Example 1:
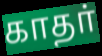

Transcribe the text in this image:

காதர்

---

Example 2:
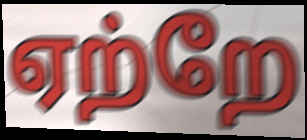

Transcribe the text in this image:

ஏற்றே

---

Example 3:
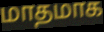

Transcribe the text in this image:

மாதமாக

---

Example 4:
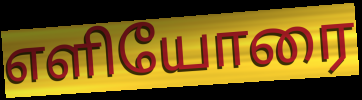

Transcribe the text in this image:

எளியோரை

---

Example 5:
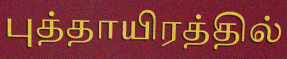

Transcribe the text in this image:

புத்தாயிரத்தில்